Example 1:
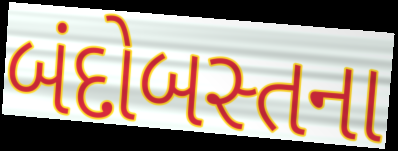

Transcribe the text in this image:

બંદોબસ્તના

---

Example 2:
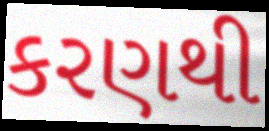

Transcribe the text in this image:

કરણથી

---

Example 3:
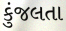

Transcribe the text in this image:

કુંજલતા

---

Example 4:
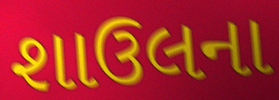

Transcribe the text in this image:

શાઉલના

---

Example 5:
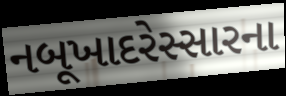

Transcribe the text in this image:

નબૂખાદરેસ્સારના